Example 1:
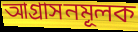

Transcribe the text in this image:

আগ্রাসনমূলক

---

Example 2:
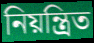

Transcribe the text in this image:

নিয়ন্ত্রিত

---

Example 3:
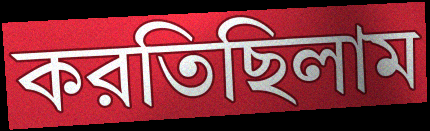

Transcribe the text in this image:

করতিছিলাম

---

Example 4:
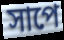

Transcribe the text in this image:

সাপে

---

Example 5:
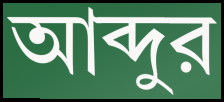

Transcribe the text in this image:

আব্দুর